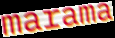
marama